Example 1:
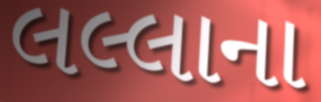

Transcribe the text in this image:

લલ્લાના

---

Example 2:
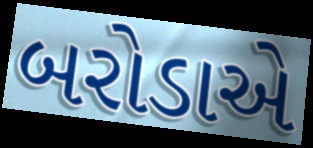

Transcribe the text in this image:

બરોડાએ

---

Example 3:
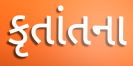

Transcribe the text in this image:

કૃતાંતના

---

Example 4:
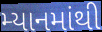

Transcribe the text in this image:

મ્યાનમાંથી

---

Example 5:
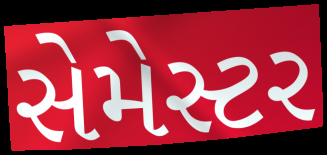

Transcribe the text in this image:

સેમેસ્ટર